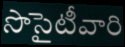
సొసైటీవారి